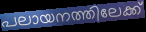
പലായനത്തിലേക്ക്